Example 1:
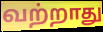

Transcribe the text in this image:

வற்றாது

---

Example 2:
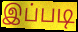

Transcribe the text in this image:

இப்படி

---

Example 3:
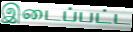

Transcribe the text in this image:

இடைப்பட்ட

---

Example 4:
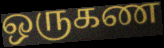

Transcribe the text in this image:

ஒருகண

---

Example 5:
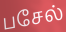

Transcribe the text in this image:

பசேல்